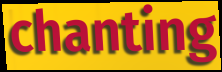
chanting